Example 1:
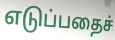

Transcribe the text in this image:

எடுப்பதைச்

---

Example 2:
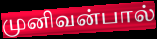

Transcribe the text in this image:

முனிவன்பால்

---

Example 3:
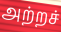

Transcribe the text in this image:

அற்றச்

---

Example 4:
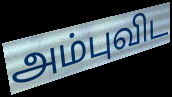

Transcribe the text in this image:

அம்புவிட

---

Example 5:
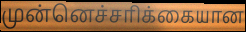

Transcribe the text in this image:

முன்னெச்சரிக்கையான